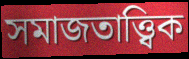
সমাজতাত্ত্বিক